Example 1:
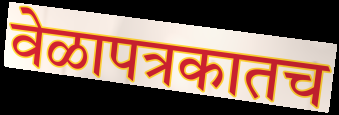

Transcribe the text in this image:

वेळापत्रकातच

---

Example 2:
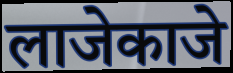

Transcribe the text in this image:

लाजेकाजे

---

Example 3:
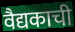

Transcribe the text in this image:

वैद्यकाची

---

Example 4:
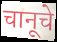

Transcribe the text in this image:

चानूचे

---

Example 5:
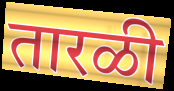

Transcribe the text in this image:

तारळी